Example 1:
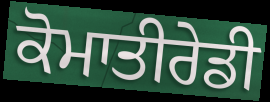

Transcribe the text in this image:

ਕੋਮਾਤੀਰੇਡੀ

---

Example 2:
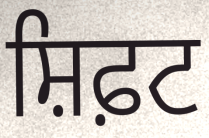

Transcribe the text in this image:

ਸ਼ਿਫ਼ਟ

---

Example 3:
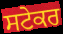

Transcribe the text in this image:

ਸਟੇਕਰ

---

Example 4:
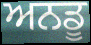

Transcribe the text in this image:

ਅਨਡੂ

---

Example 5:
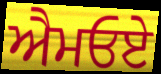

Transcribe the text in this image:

ਐਮਓਏ